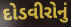
દોડવીરોનું